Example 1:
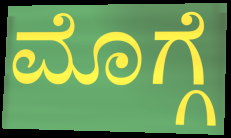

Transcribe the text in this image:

ಮೊಗ್ಗೆ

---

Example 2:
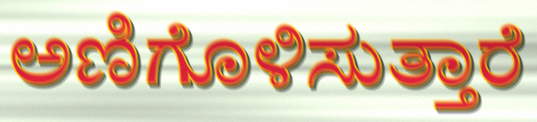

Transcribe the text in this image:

ಅಣಿಗೊಳಿಸುತ್ತಾರೆ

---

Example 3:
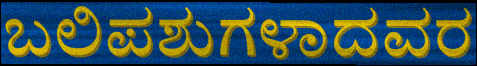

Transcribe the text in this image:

ಬಲಿಪಶುಗಳಾದವರ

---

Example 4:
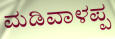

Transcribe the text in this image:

ಮಡಿವಾಳಪ್ಪ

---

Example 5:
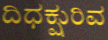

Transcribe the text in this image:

ದಿಧಕ್ಷುರಿವ